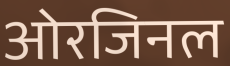
ओरजिनल